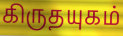
கிருதயுகம்